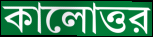
কালোত্তর